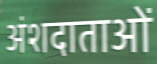
अंशदाताओं